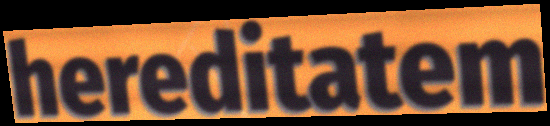
hereditatem